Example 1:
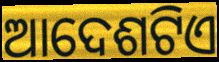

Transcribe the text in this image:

ଆଦେଶଟିଏ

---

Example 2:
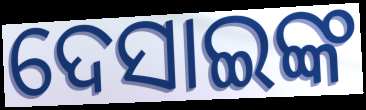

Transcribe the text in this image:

ଦେସାଇଙ୍କ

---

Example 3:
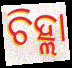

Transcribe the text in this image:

ଚିହ୍ଲା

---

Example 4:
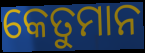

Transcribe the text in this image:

କେତୁମାନ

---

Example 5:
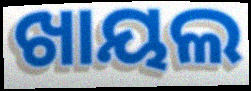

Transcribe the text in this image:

ଖାୟଲ